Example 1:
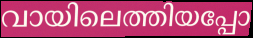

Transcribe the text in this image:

വായിലെത്തിയപ്പോ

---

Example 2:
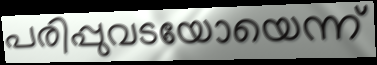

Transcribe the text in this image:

പരിപ്പുവടയോയെന്ന്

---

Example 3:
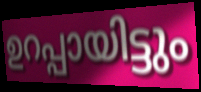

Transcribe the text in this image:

ഉറപ്പായിട്ടും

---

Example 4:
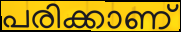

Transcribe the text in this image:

പരിക്കാണ്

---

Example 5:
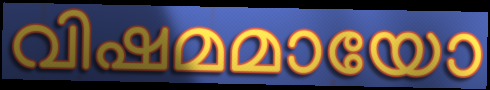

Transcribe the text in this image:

വിഷമമായോ